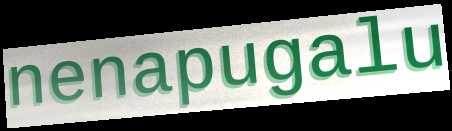
nenapugalu